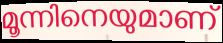
മൂന്നിനെയുമാണ്